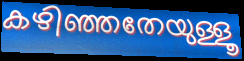
കഴിഞ്ഞതേയുള്ളൂ